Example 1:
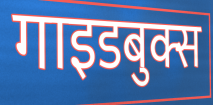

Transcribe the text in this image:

गाइडबुक्स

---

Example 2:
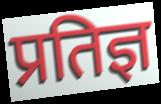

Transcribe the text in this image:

प्रतिज्ञ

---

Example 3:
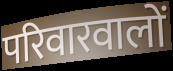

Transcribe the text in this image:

परिवारवालों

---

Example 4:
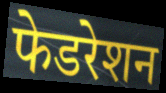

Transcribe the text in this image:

फेडरेशन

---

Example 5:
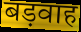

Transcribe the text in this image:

बड़वाह